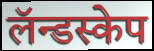
लॅन्डस्केप